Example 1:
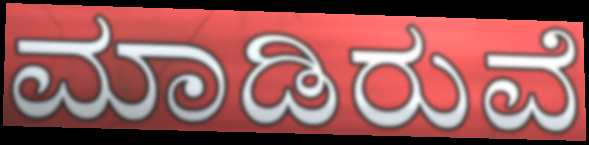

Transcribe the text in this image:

ಮಾಡಿರುವೆ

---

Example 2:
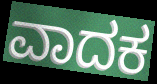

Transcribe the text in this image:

ವಾದಕ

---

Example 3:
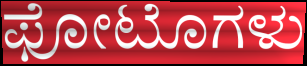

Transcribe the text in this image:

ಫೋಟೊಗಳು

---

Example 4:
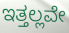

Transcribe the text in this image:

ಇತ್ತಲ್ಲವೇ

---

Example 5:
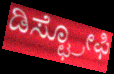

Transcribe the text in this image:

ಡಿಸ್ಟ್ರೋಫಿ